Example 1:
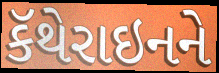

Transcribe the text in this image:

કૅથેરાઇનને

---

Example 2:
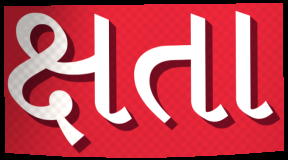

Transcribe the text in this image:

ક્ષતા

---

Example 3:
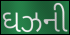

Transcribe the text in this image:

ઘઝની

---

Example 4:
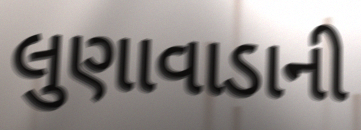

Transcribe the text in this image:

લુણાવાડાની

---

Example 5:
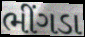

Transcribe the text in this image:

ભીંગડા